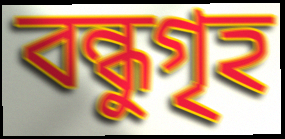
বন্ধুগৃহ